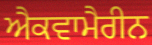
ਐਕਵਾਮੈਰੀਨ